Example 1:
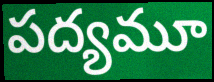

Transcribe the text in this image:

పద్యమూ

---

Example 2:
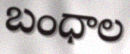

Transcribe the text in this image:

బంధాల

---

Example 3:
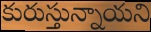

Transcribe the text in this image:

కురుస్తున్నాయని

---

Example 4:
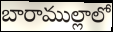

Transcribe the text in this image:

బారాముల్లాలో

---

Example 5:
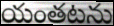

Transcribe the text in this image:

యంతటను